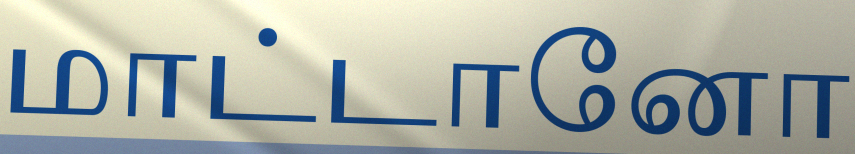
மாட்டானோ